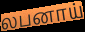
லபனாய்